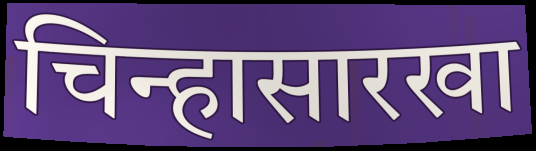
चिन्हासारखा